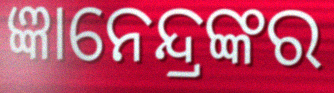
ଜ୍ଞାନେନ୍ଦ୍ରଙ୍କର